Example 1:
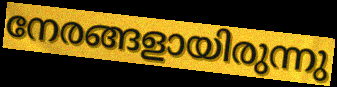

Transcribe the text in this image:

നേരങ്ങളായിരുന്നു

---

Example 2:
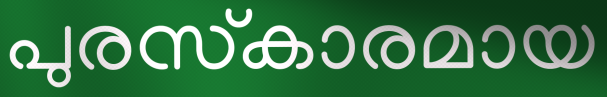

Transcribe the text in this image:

പുരസ്‌കാരമായ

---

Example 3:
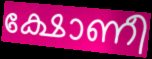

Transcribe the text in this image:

ക്ഷോണീ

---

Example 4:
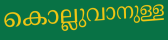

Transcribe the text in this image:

കൊല്ലുവാനുള്ള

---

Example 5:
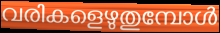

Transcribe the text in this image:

വരികളെഴുതുമ്പോൾ